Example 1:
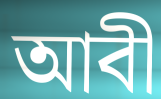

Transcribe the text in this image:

আবী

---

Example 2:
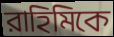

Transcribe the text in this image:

রাহিমিকে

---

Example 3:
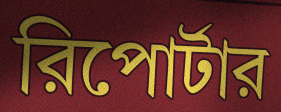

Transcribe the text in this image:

রিপোর্টার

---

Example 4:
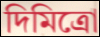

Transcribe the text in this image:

দিমিত্রো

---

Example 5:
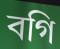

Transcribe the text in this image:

বগি